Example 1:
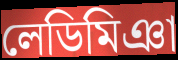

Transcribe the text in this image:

লেডিমিঞা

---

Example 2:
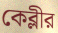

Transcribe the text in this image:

কেব্লীর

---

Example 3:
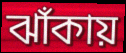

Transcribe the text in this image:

ঝাঁকায়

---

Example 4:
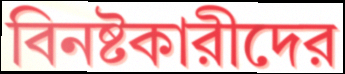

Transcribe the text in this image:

বিনষ্টকারীদের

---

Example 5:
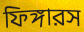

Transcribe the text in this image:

ফিঙ্গারস